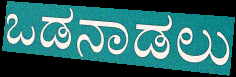
ಒಡನಾಡಲು